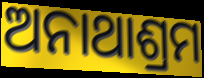
ଅନାଥାଶ୍ରମ